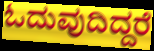
ಓದುವುದಿದ್ದರೆ